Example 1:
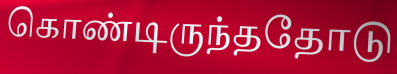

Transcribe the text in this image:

கொண்டிருந்ததோடு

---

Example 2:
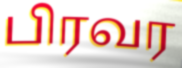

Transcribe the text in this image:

பிரவர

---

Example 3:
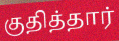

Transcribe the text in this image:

குதித்தார்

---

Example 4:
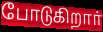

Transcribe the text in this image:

போடுகிறார்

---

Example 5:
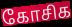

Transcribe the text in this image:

கோசிக